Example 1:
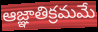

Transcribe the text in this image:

ఆజ్ఞాతిక్రమమే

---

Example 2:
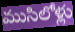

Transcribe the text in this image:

ముసిలోళ్లు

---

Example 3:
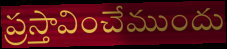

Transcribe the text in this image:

ప్రస్తావించేముందు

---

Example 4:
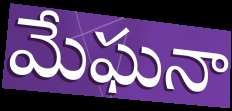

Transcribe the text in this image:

మేఘనా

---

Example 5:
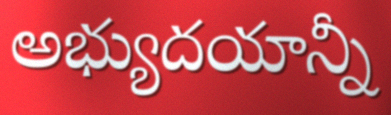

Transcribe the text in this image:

అభ్యుదయాన్నీ